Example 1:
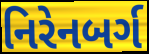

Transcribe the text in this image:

નિરેનબર્ગ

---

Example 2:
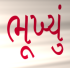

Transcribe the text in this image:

ભૂખ્યું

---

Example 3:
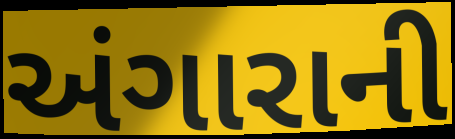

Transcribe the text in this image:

અંગારાની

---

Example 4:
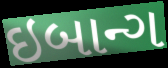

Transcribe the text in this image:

ઇબાન્ગ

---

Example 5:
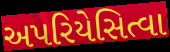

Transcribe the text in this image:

અપરિયેસિત્વા